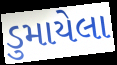
ડુમાયેલા